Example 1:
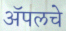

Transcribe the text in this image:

ॲपलचे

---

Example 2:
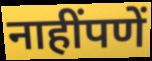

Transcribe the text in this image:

नाहींपणें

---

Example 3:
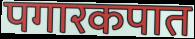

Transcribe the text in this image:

पगारकपात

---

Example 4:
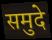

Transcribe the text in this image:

समुदे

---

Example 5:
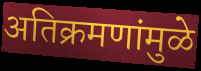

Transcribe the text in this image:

अतिक्रमणांमुळे